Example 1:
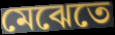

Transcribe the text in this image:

মেঝেতে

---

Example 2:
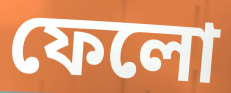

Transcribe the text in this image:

ফেলো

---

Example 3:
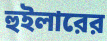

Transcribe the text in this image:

হুইলারের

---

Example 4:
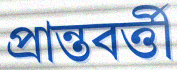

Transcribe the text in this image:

প্রান্তবর্ত্তী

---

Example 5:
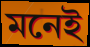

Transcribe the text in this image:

মনেই